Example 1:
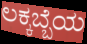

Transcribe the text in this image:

ಲಕ್ಕಬ್ಬೆಯ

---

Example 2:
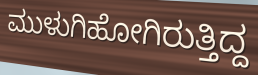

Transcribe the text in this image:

ಮುಳುಗಿಹೋಗಿರುತ್ತಿದ್ದ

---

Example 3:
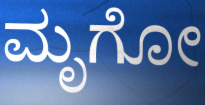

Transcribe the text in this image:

ಮೃಗೋ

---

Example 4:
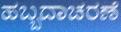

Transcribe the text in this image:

ಹಬ್ಬದಾಚರಣೆ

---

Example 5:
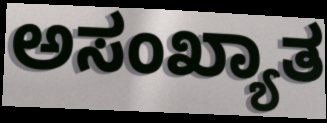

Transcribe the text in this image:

ಅಸಂಖ್ಯಾತ